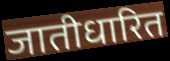
जातीधारित